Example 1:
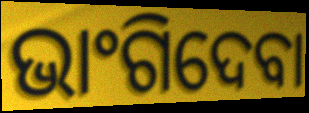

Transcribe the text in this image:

ଭାଂଗିଦେବା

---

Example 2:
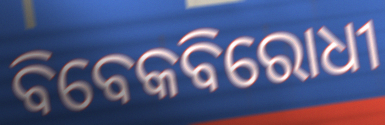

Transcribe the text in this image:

ବିବେକବିରୋଧୀ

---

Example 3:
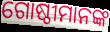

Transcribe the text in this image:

ଗୋଷ୍ଠୀମାନଙ୍କ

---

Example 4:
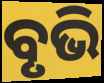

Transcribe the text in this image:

ବୃଭି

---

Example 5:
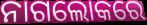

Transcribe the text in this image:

ନାଗଲୋକରେ